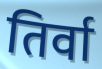
तिर्वा